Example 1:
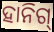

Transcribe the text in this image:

ହାନିଗ୍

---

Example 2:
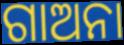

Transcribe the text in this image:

ଗାଅନା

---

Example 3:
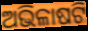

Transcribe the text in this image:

ଅଭିଳାଷଟି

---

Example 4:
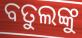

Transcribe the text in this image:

ବତୁଲଙ୍କୁ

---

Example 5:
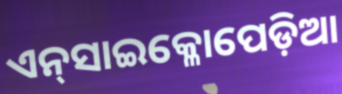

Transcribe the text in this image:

ଏନ୍‌ସାଇକ୍ଳୋପେଡ଼ିଆ